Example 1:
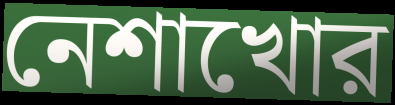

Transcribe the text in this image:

নেশাখোর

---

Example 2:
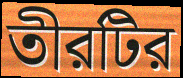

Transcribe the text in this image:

তীরটির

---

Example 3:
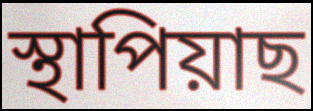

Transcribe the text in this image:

স্থাপিয়াছ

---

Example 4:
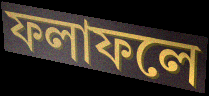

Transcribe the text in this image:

ফলাফলে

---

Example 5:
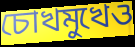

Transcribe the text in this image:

চোখমুখেও